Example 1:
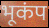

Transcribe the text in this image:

भूकंप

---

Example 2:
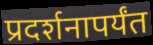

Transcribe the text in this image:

प्रदर्शनापर्यंत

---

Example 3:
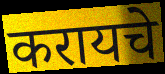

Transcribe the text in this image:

करायचे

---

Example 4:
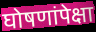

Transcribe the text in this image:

घोषणांपेक्षा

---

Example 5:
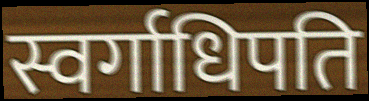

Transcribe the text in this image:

स्वर्गाधिपति